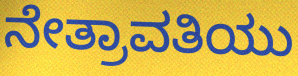
ನೇತ್ರಾವತಿಯು